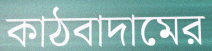
কাঠবাদামের